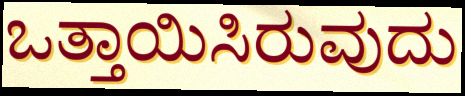
ಒತ್ತಾಯಿಸಿರುವುದು